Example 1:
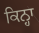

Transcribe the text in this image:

ਕਿਨ੍ਹਾ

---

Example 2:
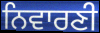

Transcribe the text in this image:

ਨਿਵਾਰਣੀ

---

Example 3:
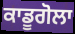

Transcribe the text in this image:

ਕਾਡੂਗੋਲਾ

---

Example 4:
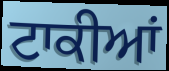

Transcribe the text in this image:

ਟਾਕੀਆਂ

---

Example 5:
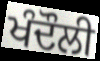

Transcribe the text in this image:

ਖੰਦੌਲੀ